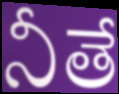
నీతే